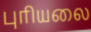
புரியலை